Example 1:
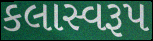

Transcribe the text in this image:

કલાસ્વરૂપ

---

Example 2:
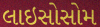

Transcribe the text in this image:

લાઇસોસોમ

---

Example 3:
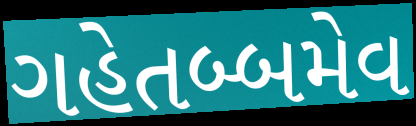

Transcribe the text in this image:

ગહેતબ્બમેવ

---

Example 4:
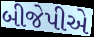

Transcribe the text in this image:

બીજેપીએ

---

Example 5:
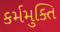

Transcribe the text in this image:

કર્મમુક્તિ